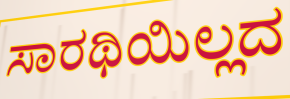
ಸಾರಥಿಯಿಲ್ಲದ